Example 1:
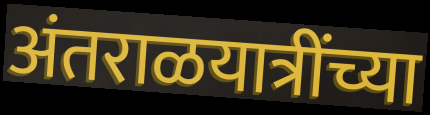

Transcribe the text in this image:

अंतराळयात्रींच्या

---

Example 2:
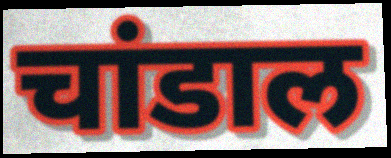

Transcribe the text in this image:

चांडाल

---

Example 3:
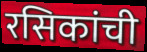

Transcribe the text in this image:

रसिकांची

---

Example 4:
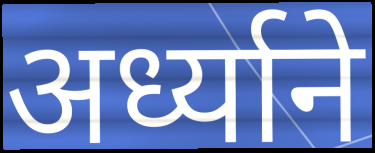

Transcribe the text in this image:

अर्ध्याने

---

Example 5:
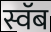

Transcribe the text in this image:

स्वॅब